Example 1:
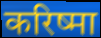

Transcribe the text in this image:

करिष्मा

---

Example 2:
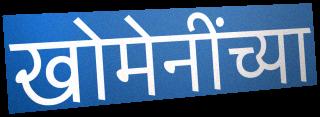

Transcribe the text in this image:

खोमेनींच्या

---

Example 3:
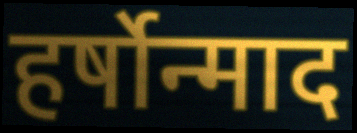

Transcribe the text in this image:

हर्षोन्माद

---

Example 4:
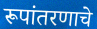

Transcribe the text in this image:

रूपांतरणाचे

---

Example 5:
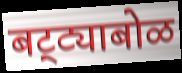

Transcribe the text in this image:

बट्ट्याबोळ